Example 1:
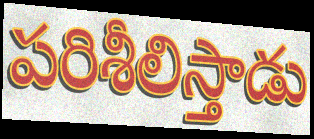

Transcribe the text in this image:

పరిశీలిస్తాడు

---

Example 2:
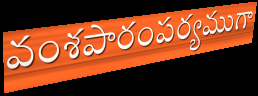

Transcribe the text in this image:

వంశపారంపర్యముగా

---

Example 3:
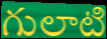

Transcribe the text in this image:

గులాటి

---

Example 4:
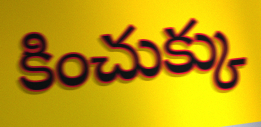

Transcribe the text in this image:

కించుక్కు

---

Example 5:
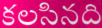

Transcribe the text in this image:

కలసినది